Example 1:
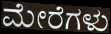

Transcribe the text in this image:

ಮೇರೆಗಳು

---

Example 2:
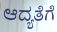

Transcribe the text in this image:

ಆದ್ಯತೆಗೆ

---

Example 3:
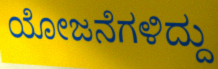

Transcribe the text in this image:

ಯೋಜನೆಗಳಿದ್ದು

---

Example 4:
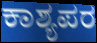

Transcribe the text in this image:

ಕಾಶ್ಯಪರ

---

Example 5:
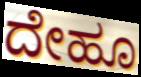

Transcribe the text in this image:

ದೇಹೂ